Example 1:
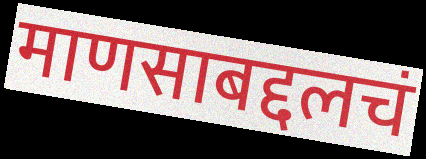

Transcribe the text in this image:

माणसाबद्दलचं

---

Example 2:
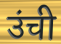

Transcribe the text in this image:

उंची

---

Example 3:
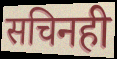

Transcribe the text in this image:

सचिनही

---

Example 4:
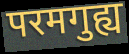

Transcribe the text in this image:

परमगुह्य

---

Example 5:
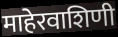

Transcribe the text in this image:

माहेरवाशिणी